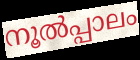
നൂൽപ്പാലം